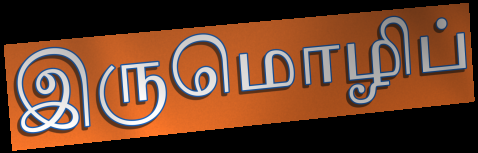
இருமொழிப்